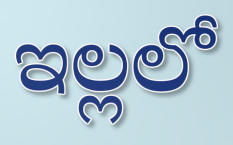
ఇల్లలో